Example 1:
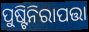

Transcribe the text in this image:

ପୁଷ୍ଟିନିରାପତ୍ତା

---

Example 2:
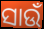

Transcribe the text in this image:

ସାଉଁ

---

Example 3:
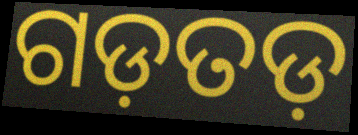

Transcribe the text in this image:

ଗଡ଼ତଡ଼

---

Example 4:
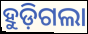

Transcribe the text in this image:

ହୁଡ଼ିଗଲା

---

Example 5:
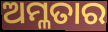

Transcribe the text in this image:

ଅମ୍ଳତାର